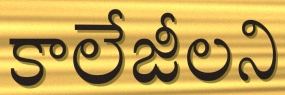
కాలేజీలని